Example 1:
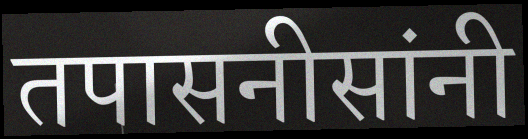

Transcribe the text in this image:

तपासनीसांनी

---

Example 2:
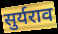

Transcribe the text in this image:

सुर्यराव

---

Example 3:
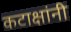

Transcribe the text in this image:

कटाक्षांनी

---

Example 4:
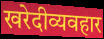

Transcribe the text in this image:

खरेदीव्यवहार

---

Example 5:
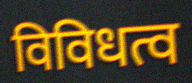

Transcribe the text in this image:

विविधत्व